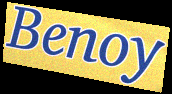
Benoy